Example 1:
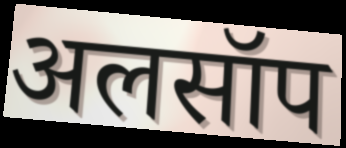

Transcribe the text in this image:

अलसॉप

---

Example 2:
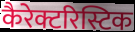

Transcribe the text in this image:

कैरेक्टरिस्टिक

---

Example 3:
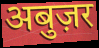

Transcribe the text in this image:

अबुज़र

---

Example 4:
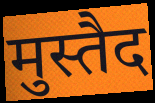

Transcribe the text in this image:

मुस्‍तैद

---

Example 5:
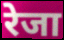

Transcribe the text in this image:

रेजा